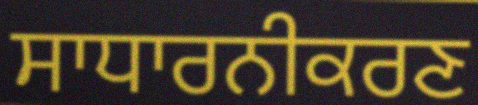
ਸਾਧਾਰਨੀਕਰਣ